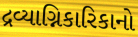
દ્રવ્યાગ્નિકારિકાનો